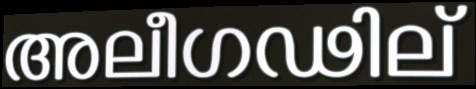
അലീഗഢില്